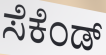
ಸೆಕೆಂಡ್